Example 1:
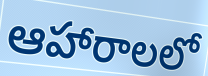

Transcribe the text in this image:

ఆహారాలలో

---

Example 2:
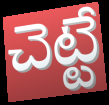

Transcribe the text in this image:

చెట్టే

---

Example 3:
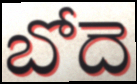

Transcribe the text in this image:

బోదె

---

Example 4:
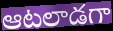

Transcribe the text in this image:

ఆటలాడగా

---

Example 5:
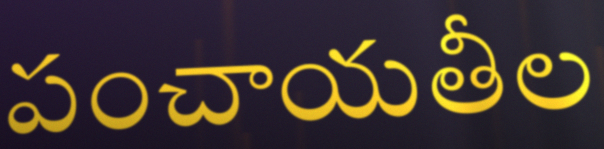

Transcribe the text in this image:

పంచాయతీల